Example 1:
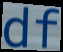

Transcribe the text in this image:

df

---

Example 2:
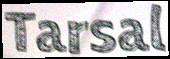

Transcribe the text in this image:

Tarsal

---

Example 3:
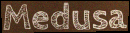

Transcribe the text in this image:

Medusa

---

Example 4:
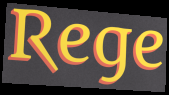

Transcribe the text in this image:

Rege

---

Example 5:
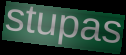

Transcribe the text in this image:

stupas